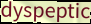
dyspeptic